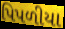
પિપળીયા